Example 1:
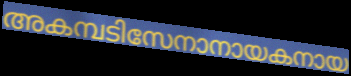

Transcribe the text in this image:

അകമ്പടിസേനാനായകനായ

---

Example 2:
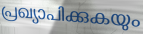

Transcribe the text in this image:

പ്രഖ്യാപിക്കുകയും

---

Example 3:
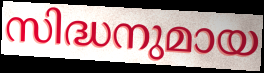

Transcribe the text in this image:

സിദ്ധനുമായ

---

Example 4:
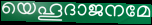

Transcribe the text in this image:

യെഹൂദാജനമേ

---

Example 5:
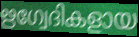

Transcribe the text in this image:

ഋഗ്വേദികളായ